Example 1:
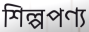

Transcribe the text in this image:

শিল্পপণ্য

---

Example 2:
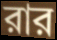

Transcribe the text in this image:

রার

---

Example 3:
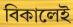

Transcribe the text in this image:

বিকালেই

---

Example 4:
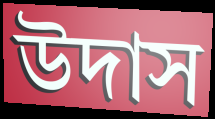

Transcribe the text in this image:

উদাস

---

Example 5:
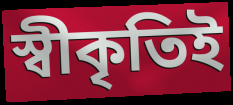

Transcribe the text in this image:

স্বীকৃতিই